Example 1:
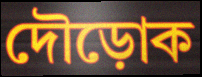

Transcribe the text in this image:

দৌড়োক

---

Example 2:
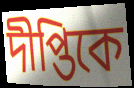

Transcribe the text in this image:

দীপ্তিকে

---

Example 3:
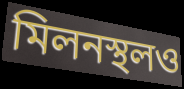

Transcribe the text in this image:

মিলনস্থলও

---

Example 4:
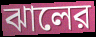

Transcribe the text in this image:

ঝালের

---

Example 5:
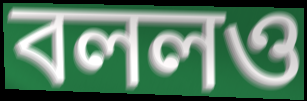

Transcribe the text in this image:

বললও